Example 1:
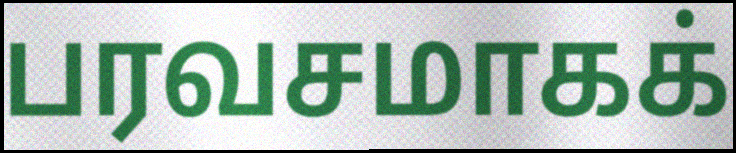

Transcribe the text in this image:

பரவசமாகக்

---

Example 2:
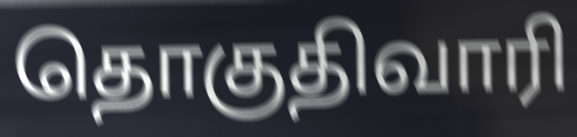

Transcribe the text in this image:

தொகுதிவாரி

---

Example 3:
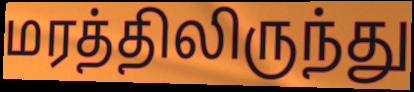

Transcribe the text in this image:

மரத்திலிருந்து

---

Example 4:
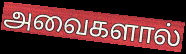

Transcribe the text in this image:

அவைகளால்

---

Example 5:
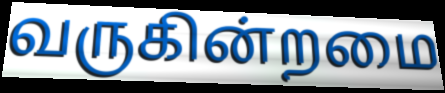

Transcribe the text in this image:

வருகின்றமை